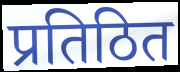
प्रतिठित